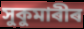
সুকুমাৰীৰ